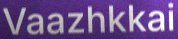
Vaazhkkai